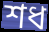
শধ